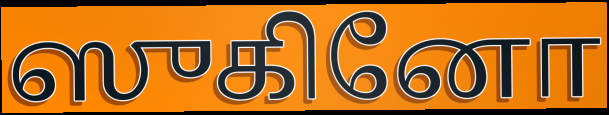
ஸுகினோ